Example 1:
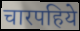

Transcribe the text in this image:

चारपहिये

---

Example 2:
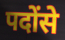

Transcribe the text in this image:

पदोंसे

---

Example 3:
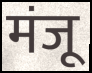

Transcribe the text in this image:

मंजू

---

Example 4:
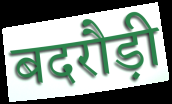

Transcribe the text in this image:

बदरौड़ी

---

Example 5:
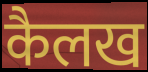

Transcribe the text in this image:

कैलख